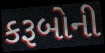
કરૂબોની